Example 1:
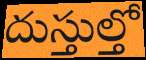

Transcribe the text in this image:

దుస్తుల్తో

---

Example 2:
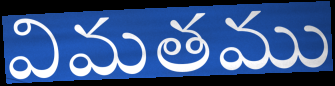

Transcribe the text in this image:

విమతము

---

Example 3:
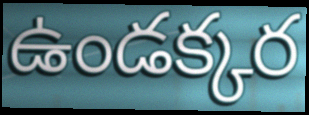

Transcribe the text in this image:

ఉండక్కర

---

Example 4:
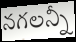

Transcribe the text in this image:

నగలన్నీ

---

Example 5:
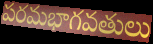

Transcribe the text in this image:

పరమభాగవతులు